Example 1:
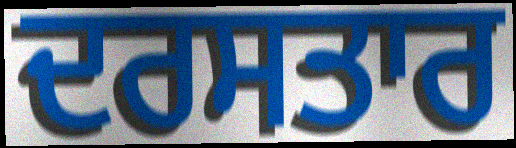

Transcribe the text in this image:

ਦਰਸਤਾਰ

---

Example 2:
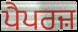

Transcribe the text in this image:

ਪੈਪਰਜ਼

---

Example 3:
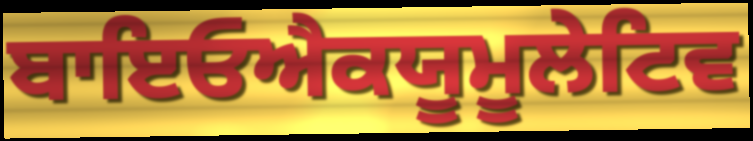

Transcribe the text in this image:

ਬਾਇਓਐਕਯੂਮੂਲੇਟਿਵ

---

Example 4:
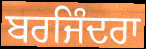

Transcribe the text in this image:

ਬਰਜਿੰਦਰਾ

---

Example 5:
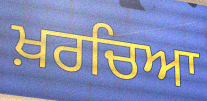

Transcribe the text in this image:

ਖ਼ਰਚਿਆ